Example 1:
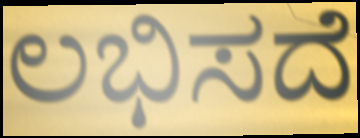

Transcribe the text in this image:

ಲಭಿಸದೆ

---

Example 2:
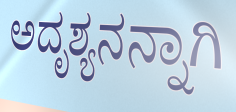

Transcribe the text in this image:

ಅದೃಶ್ಯನನ್ನಾಗಿ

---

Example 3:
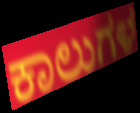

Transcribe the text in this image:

ಕಾಲುಗಳ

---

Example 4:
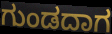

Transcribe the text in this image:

ಗುಂಡದಾಗ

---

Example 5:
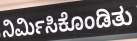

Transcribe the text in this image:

ನಿರ್ಮಿಸಿಕೊಂಡಿತು